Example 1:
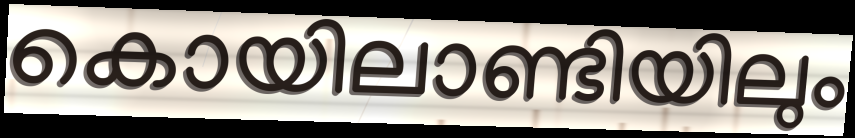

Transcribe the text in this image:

കൊയിലാണ്ടിയിലും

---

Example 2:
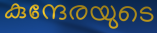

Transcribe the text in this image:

കുന്ദേരയുടെ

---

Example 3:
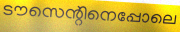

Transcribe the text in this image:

ടൗസെന്റിനെപ്പോലെ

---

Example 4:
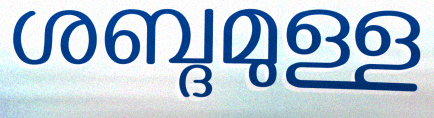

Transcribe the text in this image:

ശബ്ദമുള്ള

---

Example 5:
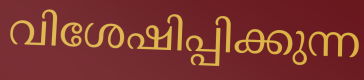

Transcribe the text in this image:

വിശേഷിപ്പിക്കുന്ന